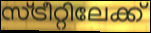
സ്ട്രീറ്റിലേക്ക്